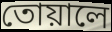
তোয়ালে